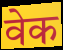
वेक